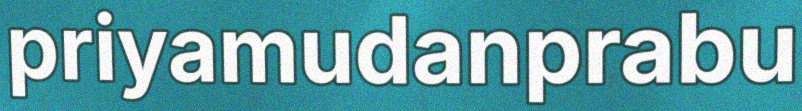
priyamudanprabu